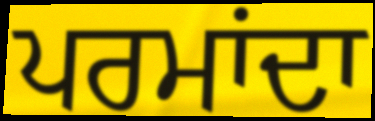
ਪਰਮਾਂਦਾ